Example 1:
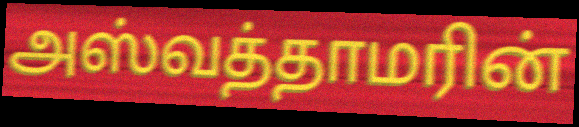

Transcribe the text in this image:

அஸ்வத்தாமரின்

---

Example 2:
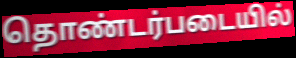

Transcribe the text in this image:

தொண்டர்படையில்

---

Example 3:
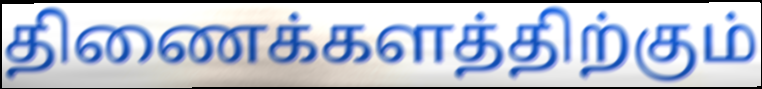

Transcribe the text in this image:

திணைக்களத்திற்கும்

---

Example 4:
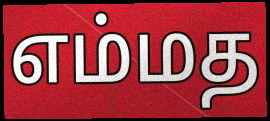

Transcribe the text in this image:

எம்மத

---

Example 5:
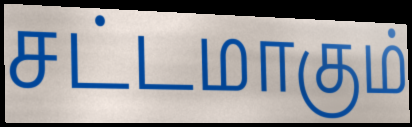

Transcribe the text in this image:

சட்டமாகும்